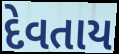
દેવતાય